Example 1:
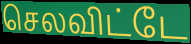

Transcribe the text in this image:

செலவிட்டே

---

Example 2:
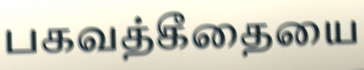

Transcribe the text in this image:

பகவத்கீதையை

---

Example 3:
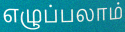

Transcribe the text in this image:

எழுப்பலாம்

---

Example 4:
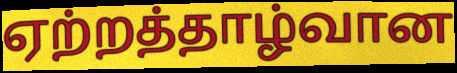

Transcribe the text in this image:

ஏற்றத்தாழ்வான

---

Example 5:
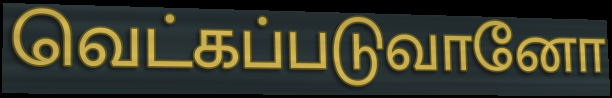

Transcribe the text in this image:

வெட்கப்படுவானோ